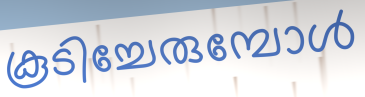
കൂടിച്ചേരുമ്പോൾ